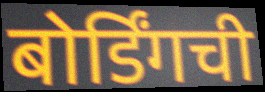
बोर्डिंगची